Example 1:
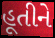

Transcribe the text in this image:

હૂતીને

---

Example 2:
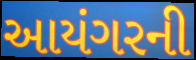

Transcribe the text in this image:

આયંગરની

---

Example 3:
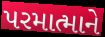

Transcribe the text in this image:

પરમાત્માને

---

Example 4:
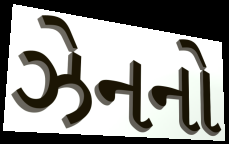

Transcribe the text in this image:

ઝેનનો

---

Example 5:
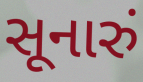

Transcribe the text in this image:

સૂનારું